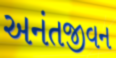
અનંતજીવન